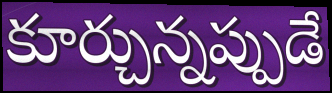
కూర్చున్నప్పుడే